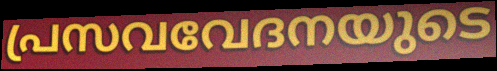
പ്രസവവേദനയുടെ